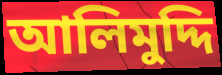
আলিমুদ্দি